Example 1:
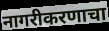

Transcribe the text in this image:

नागरीकरणाचा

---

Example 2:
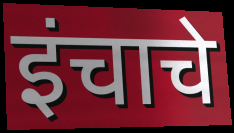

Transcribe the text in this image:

इंचाचे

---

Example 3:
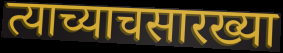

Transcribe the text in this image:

त्याच्याचसारख्या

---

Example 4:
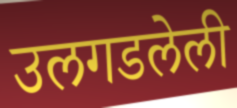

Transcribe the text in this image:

उलगडलेली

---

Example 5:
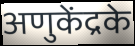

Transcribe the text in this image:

अणुकेंद्रके